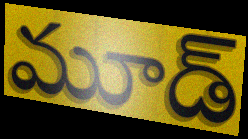
మూడ్